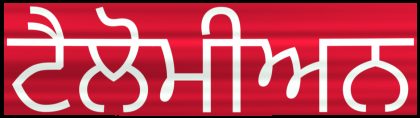
ਟੈਲੋਮੀਅਨ